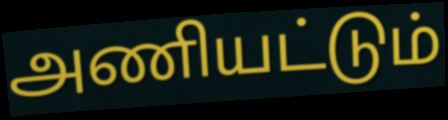
அணியட்டும்